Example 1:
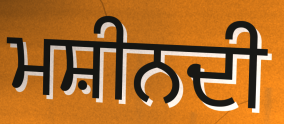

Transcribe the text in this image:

ਮਸ਼ੀਨਦੀ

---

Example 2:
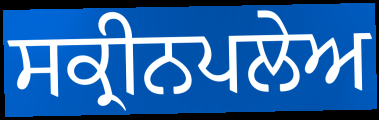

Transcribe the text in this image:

ਸਕ੍ਰੀਨਪਲੇਅ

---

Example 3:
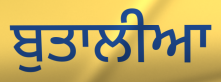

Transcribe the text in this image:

ਬੁਤਾਲੀਆ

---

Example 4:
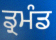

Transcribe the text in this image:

ਡ੍ਰਮੰਡ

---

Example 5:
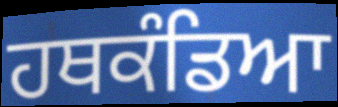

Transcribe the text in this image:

ਹਥਕੰਡਿਆ